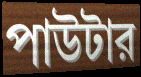
পাউটার